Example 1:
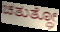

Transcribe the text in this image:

ಚತುತ್ಥೋ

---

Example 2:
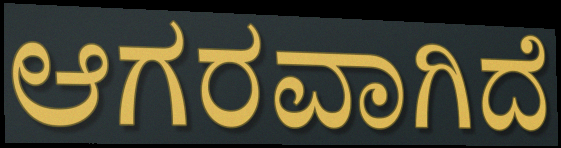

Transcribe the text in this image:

ಆಗರವಾಗಿದೆ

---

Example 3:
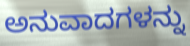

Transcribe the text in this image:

ಅನುವಾದಗಳನ್ನು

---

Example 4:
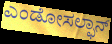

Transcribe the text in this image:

ಎಂಡೋಸಲ್ಫಾನ್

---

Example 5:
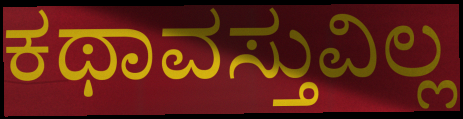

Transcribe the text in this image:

ಕಥಾವಸ್ತುವಿಲ್ಲ